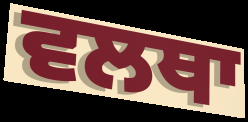
ਵਲਥਾ